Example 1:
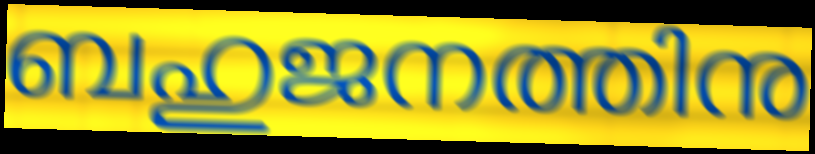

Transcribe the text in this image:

ബഹുജനത്തിനു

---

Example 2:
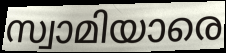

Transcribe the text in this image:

സ്വാമിയാരെ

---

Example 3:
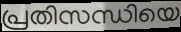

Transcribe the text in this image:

പ്രതിസന്ധിയെ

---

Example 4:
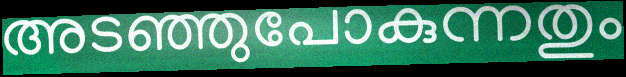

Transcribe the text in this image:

അടഞ്ഞുപോകുന്നതും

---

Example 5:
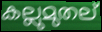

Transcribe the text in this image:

കല്ലുമുതല്